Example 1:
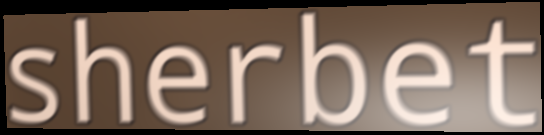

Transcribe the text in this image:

sherbet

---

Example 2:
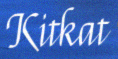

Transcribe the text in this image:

Kitkat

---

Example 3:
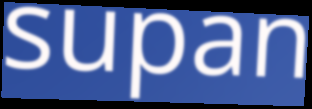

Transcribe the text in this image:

supan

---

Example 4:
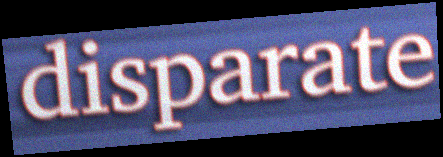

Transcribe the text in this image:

disparate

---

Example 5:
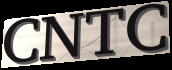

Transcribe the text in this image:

CNTC